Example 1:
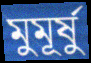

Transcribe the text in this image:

মুমূর্ষু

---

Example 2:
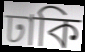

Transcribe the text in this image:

ঢাকি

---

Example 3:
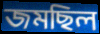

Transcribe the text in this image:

জমছিল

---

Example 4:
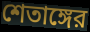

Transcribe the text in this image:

শেতাঙ্গের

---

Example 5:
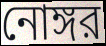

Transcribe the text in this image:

নোঙ্গর